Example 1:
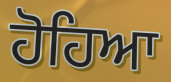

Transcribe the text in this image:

ਹੋਹਿਆ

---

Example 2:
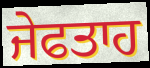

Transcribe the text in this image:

ਜੇਫਤਾਹ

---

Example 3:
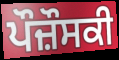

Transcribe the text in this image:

ਪੌਜ਼ੌਸਕੀ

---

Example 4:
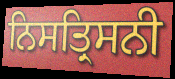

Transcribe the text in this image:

ਨਿਸਤ੍ਰਿਸਨੀ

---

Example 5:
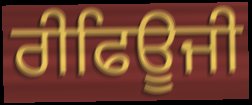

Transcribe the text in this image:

ਰੀਫਿਊਜੀ